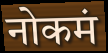
नोकमं